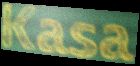
Kasa